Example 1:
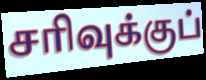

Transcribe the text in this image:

சரிவுக்குப்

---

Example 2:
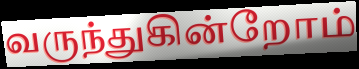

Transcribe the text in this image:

வருந்துகின்றோம்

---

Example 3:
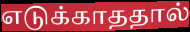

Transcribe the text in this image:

எடுக்காததால்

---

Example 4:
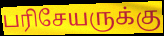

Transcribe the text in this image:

பரிசேயருக்கு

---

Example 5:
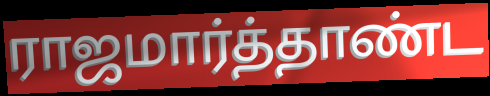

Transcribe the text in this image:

ராஜமார்த்தாண்ட